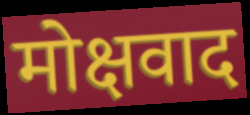
मोक्षवाद